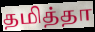
தமித்தா